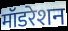
मॉडरेशन